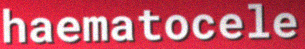
haematocele